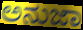
ಅನುಜಾ